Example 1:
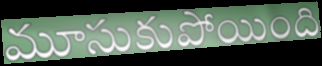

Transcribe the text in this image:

మూసుకుపోయింది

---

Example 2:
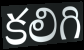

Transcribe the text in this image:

కలిగి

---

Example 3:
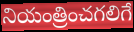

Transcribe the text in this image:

నియంత్రించగలిగే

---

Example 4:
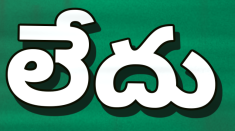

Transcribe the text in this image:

లేదు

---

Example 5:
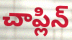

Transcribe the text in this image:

చాప్లిన్